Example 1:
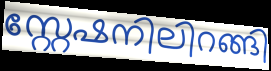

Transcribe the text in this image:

സ്റ്റേഷനിലിറങ്ങി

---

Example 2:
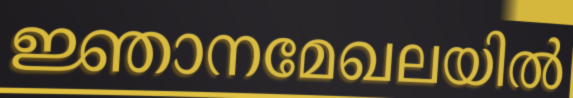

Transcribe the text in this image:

ജ്ഞാനമേഖലയിൽ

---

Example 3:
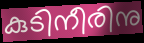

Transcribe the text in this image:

കുടിനീരിനു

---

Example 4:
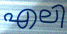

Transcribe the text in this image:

എലി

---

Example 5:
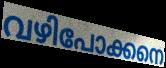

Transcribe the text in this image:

വഴിപോക്കനെ